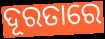
ଦୂରତାରେ